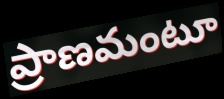
ప్రాణమంటూ